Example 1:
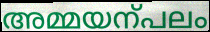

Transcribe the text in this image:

അമ്മയന്പലം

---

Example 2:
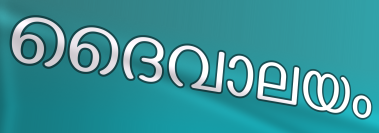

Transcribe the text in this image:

ദൈവാലയം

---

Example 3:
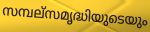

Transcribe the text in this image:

സമ്പല്സമൃദ്ധിയുടെയും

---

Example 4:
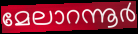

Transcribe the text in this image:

മേലാറന്നൂർ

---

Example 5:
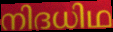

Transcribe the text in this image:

നിദധിഥ